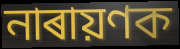
নাৰায়ণক